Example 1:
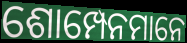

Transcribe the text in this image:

ଶୋମ୍ପେନମାନେ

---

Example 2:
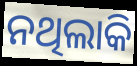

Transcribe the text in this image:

ନଥିଲାକି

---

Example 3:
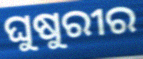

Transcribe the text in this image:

ଘୁଷୁରୀର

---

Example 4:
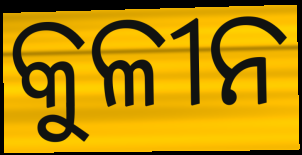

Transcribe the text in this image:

କୁଳୀନ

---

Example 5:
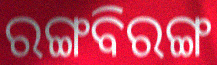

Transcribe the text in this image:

ରଙ୍ଗବିରଙ୍ଗ